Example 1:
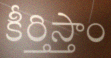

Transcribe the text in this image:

కీర్తిస్తాం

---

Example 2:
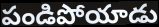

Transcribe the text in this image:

పండిపోయాడు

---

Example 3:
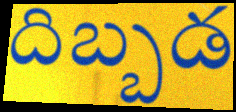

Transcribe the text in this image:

దిబ్బడ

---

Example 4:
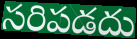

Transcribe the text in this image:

సరిపడదు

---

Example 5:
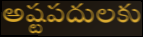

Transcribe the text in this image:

అష్టపదులకు